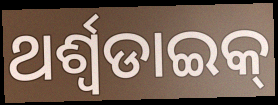
ଥର୍ଶ୍ଵଡାଇକ୍